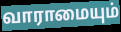
வாராமையும்